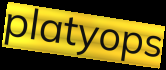
platyops